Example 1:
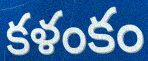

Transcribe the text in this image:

కళంకం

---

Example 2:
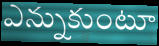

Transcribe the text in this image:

ఎన్నుకుంటూ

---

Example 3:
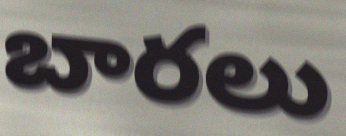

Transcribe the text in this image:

బారలు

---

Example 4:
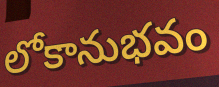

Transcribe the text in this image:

లోకానుభవం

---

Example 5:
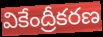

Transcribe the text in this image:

వికేంద్రీకరణ